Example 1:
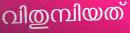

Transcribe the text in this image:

വിതുമ്പിയത്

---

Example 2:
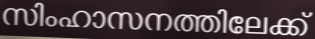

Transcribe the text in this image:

സിംഹാസനത്തിലേക്ക്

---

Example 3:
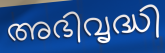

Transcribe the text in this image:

അഭിവൃദ്ധി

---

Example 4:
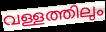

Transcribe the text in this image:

വള്ളത്തിലും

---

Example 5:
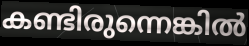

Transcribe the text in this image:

കണ്ടിരുന്നെങ്കിൽ